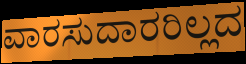
ವಾರಸುದಾರರಿಲ್ಲದ